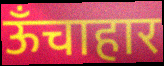
ऊँचाहार